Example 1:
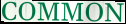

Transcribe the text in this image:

COMMON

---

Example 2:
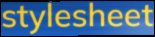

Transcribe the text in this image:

stylesheet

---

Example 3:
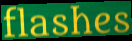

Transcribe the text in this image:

flashes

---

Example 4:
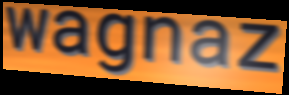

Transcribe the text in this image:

wagnaz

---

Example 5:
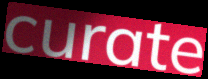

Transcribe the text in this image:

curate